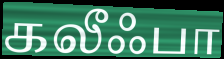
கலீஃபா